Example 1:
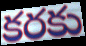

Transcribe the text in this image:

కరకు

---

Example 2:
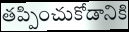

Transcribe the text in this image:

తప్పించుకోడానికి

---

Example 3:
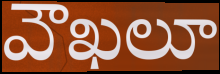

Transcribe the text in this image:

వౌఖలూ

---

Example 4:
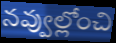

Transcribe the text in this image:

నవ్వుల్లోంచి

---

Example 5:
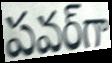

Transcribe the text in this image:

పవర్‌గా